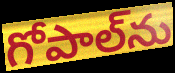
గోపాల్‌ను